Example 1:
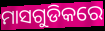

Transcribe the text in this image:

ମାସଗୁଡିକରେ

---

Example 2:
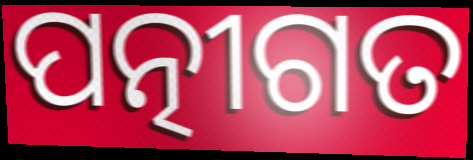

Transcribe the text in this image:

ପତ୍ନୀଗତ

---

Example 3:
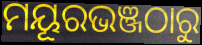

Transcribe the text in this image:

ମୟୂରଭଞ୍ଜଠାରୁ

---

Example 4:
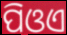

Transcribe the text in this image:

ପିଓଏ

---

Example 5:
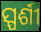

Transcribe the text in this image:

ସ୍ପର୍ଶୀ